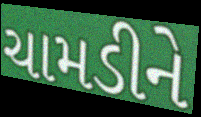
ચામડીને